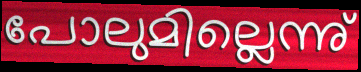
പോലുമില്ലെന്നു്